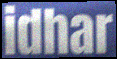
idhar